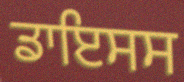
ਡਾਇਸਸ